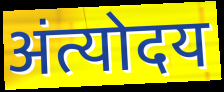
अंत्योदय